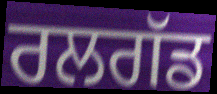
ਰਲਗੱਡ